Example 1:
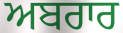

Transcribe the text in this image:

ਅਬਰਾਰ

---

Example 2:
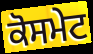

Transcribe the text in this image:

ਕੋਸਮੇਟ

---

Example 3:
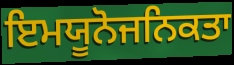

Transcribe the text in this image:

ਇਮਯੂਨੋਜਨਿਕਤਾ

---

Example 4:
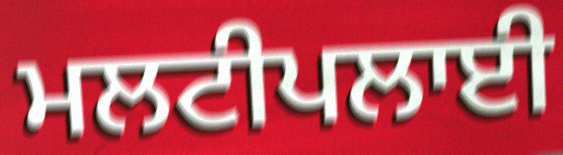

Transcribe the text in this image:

ਮਲਟੀਪਲਾਈ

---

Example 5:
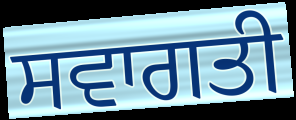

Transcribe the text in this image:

ਸਵਾਗਤੀ